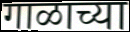
गाळाच्या